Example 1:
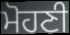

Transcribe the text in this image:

ਮੋਹਣੀ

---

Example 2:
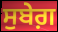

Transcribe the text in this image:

ਸੁਬੇਗ਼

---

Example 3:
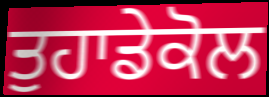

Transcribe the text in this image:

ਤੁਹਾਡੇਕੋਲ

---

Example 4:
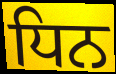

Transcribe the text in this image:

ਧਿਨ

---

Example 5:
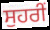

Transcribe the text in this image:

ਸੁਹਰੀਂ